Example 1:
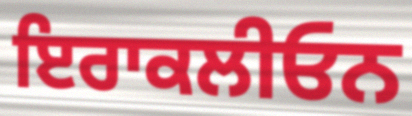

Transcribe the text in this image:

ਇਰਾਕਲੀਓਨ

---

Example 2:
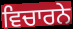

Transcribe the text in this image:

ਵਿਚਾਰਨੇ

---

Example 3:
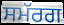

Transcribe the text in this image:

ਸਮੱਰਗ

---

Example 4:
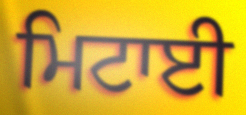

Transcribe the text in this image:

ਮਿਟਾਈ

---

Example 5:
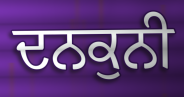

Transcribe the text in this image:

ਦਨਕੁਨੀ